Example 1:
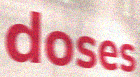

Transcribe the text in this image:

doses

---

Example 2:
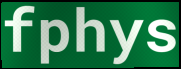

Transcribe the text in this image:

fphys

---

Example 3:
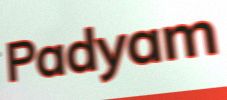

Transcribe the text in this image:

Padyam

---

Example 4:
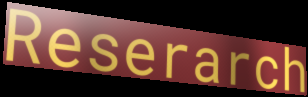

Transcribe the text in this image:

Reserarch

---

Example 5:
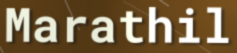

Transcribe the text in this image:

Marathil